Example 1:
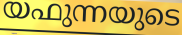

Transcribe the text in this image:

യഫുന്നയുടെ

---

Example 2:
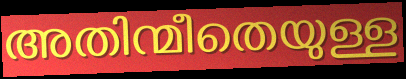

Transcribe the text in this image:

അതിന്മീതെയുള്ള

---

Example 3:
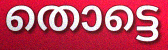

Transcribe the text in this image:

തൊട്ടെ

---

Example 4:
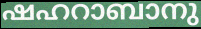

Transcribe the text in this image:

ഷഹറാബാനു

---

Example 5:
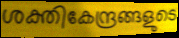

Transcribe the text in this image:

ശക്തികേന്ദ്രങ്ങളുടെ